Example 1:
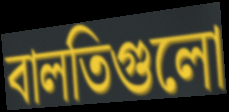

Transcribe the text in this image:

বালতিগুলো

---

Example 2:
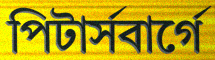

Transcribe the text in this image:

পিটার্সবার্গে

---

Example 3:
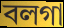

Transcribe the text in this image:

বলগা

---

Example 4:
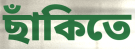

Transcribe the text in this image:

ছাঁকিতে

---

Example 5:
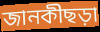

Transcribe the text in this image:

জানকীছড়া